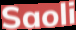
Saoli